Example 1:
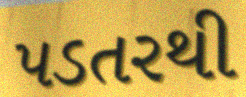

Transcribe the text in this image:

પડતરથી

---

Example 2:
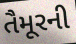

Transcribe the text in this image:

તૈમૂરની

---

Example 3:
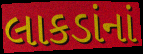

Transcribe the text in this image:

લાકડાંનાં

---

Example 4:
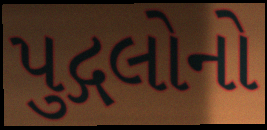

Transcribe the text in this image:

પુદ્ગલોનો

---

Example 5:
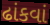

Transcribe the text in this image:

ઢાંકવાં